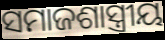
ସମାଜଶାସ୍ତ୍ରୀୟ